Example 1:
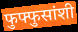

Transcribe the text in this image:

फुफ्फुसांशी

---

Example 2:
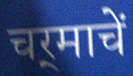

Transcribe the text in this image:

चर्माचें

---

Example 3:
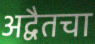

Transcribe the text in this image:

अद्वैतचा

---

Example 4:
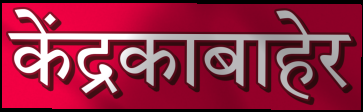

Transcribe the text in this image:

केंद्रकाबाहेर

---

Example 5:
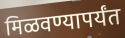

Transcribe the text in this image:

मिळवण्यापर्यंत